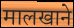
मालखाने